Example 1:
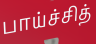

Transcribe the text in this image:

பாய்ச்சித்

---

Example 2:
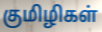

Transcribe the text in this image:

குமிழிகள்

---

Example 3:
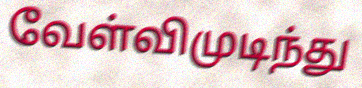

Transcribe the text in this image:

வேள்விமுடிந்து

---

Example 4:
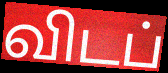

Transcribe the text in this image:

விடப்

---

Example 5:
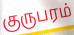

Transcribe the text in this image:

குருபரம்